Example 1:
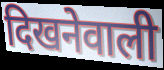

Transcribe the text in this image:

दिखनेवाली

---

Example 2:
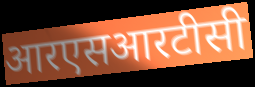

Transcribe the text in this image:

आरएसआरटीसी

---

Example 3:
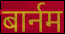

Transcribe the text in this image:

बार्नम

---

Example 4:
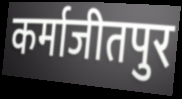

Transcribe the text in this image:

कर्माजीतपुर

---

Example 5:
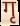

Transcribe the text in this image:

गृ